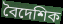
বৈদেশিক